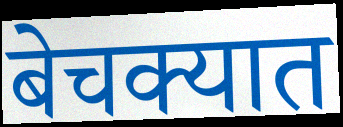
बेचक्यात